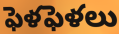
ఫెళఫెళలు